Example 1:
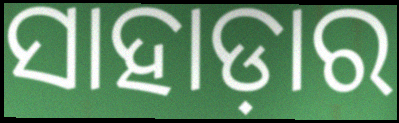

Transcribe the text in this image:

ସାହାଡ଼ାର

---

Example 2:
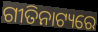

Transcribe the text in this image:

ଗୀତିନାଟ୍ୟରେ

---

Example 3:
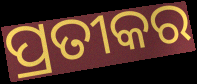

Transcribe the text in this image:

ପ୍ରତୀକର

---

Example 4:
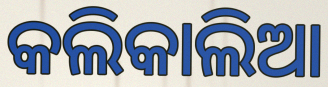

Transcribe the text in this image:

କଲିକାଲିଆ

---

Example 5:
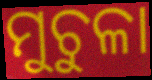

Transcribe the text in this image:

ମୁଚୁଳା